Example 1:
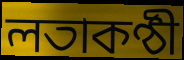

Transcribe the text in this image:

লতাকণ্ঠী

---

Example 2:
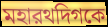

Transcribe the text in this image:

মহারথদিগকে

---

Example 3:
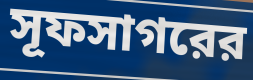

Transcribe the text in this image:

সূফসাগরের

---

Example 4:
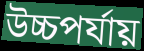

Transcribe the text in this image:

উচ্চপর্যায়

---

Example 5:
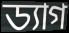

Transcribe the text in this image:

ড্যাগ